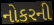
નોકરની